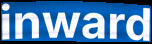
inward